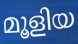
മൂളിയ